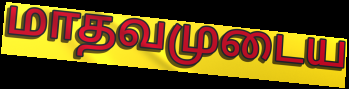
மாதவமுடைய